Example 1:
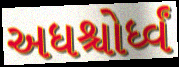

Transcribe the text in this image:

અધશ્ચોર્ધ્વં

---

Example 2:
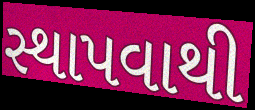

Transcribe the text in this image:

સ્થાપવાથી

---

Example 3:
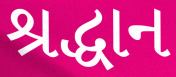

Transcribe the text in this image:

શ્રદ્ધાન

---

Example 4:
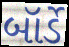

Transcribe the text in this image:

બૉર્ડે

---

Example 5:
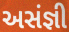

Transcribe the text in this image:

અસંજ્ઞી